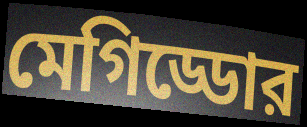
মেগিড্ডোর